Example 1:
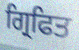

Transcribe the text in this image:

ਗ੍ਰਿਫਿਤ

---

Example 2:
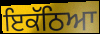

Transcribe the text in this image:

ਇਕੱਠਿਆ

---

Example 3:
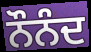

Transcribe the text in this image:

ਨੌਨੰਦ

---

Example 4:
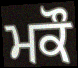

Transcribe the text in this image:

ਮਕੌ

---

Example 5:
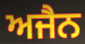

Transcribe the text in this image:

ਅਜੈਨ